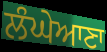
ਲੰਘੇਆਣਾ